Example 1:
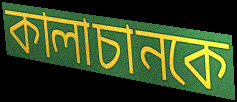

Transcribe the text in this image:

কালাচানকে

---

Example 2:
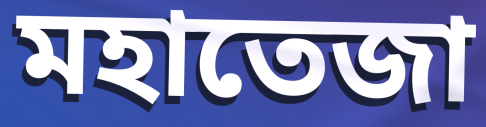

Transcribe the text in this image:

মহাতেজা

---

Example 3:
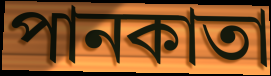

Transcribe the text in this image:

পানকাতা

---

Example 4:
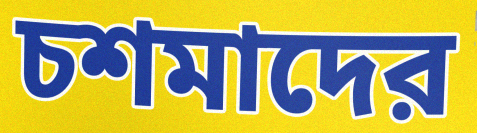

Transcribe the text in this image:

চশমাদের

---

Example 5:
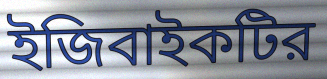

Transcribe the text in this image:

ইজিবাইকটির